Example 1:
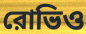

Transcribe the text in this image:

রোভিও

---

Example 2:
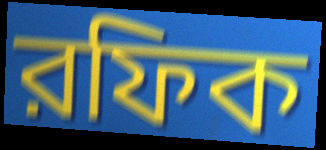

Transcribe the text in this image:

রফিক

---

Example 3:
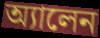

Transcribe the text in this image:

অ্যালেন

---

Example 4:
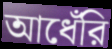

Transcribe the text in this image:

আধেঁরি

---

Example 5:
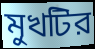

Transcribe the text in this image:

মুখটির